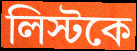
লিস্টকে